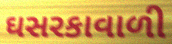
ઘસરકાવાળી